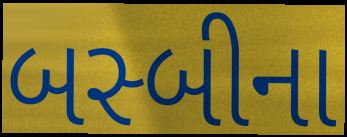
બસ્બીના